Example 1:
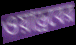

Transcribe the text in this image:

ওয়াড্রবের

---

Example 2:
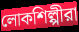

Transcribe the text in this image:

লোকশিল্পীরা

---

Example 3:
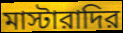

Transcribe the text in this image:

মাস্টারাদির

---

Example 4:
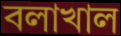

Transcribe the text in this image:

বলাখাল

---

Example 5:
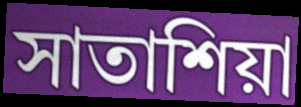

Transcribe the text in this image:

সাতাশিয়া